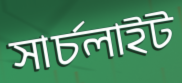
সার্চলাইট